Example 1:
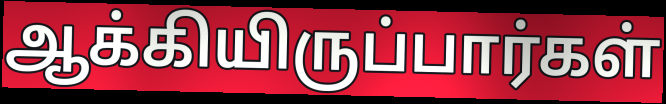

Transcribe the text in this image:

ஆக்கியிருப்பார்கள்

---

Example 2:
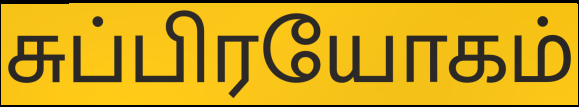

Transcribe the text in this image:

சுப்பிரயோகம்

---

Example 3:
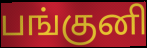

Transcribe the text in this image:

பங்குனி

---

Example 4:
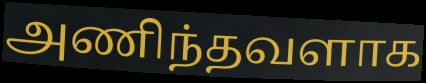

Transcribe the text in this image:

அணிந்தவளாக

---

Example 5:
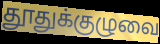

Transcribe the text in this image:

தூதுக்குழுவை